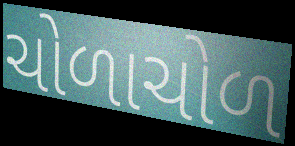
ચોળાચોળ